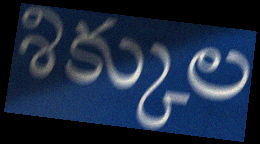
శిక్కుల